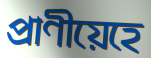
প্ৰাণীয়েহে